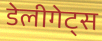
डेलीगेट्स